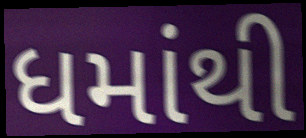
ધમાંથી